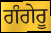
ਗੰਗੇਰੂ